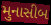
મુનાસીબ